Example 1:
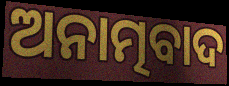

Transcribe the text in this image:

ଅନାତ୍ମବାଦ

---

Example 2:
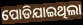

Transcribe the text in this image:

ପୋଡିଯାଇଥିଲା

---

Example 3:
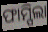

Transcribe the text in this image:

ଫାମ୍ପିଲା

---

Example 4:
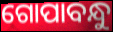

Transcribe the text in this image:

ଗୋପାବନ୍ଧୁ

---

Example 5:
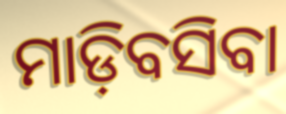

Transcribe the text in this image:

ମାଡ଼ିବସିବା